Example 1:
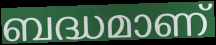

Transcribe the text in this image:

ബദ്ധമാണ്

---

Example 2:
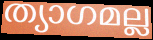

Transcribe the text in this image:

ത്യാഗമല്ല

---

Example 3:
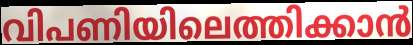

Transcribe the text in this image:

വിപണിയിലെത്തിക്കാൻ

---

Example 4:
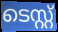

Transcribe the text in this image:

ടെസ്റ്റ്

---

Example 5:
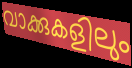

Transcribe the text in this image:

വാക്കുകളിലും